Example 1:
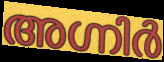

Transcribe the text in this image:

അഗ്നിർ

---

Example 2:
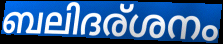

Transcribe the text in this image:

ബലിദര്ശനം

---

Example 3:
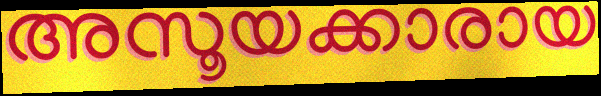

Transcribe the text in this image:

അസൂയക്കാരായ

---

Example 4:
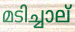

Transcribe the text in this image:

മടിച്ചാല്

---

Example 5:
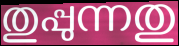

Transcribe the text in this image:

തുപ്പുന്നതു